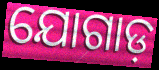
ଯୋଗାଡ଼